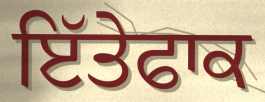
ਇੱਤੇਫਾਕ